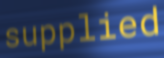
supplied